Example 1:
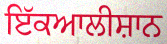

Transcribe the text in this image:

ਇੱਕਆਲੀਸ਼ਾਨ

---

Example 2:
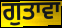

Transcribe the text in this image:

ਗੁਤਾਵਾ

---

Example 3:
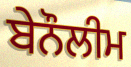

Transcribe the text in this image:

ਬੇਨੌਲੀਮ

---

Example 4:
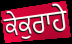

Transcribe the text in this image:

ਕੇਕੁਰਾਹੇ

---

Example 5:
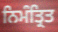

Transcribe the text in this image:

ਨਿਮੰਤ੍ਰਿਤ